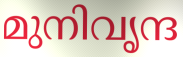
മുനിവൃന്ദ